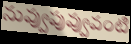
నువ్వుపువ్వువంటి